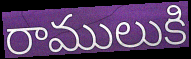
రాములుకి